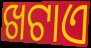
ଖଟାଏ